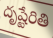
దృష్టేరితి